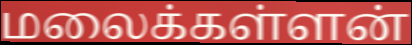
மலைக்கள்ளன்